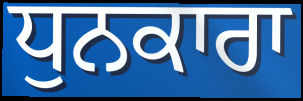
ਧੁਨਕਾਰਾ